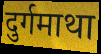
दुर्गमाथा